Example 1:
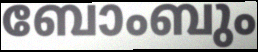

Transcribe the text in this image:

ബോംബും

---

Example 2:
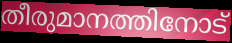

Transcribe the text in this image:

തീരുമാനത്തിനോട്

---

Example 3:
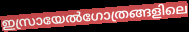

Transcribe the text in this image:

ഇസ്രായേൽഗോത്രങ്ങളിലെ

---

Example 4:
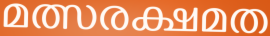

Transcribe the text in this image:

മത്സരക്ഷമത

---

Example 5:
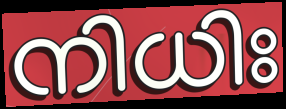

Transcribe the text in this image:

നിധിഃ